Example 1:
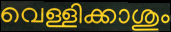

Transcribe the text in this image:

വെള്ളിക്കാശും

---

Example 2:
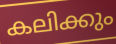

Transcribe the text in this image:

കലിക്കും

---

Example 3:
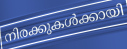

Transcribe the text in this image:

നിരക്കുകൾക്കായി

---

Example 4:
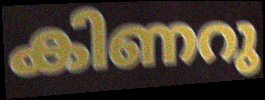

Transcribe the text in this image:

കിണറു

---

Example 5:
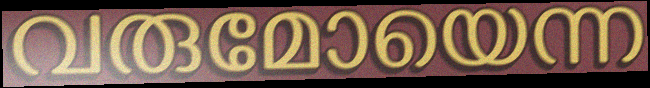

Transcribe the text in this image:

വരുമോയെന്ന